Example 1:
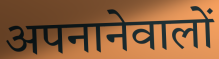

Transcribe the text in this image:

अपनानेवालों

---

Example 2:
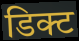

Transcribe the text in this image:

डिक्ट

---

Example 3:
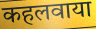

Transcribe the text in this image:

कहलवाया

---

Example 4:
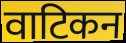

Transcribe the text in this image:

वाटिकन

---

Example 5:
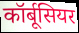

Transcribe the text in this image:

कॉर्बूसियर